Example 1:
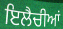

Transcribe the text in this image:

ਇਲੈਚੀਆਂ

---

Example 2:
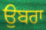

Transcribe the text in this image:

ਉਬਰਾ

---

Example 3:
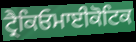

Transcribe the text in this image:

ਟ੍ਰੈਕਿਓਮਾਈਕੋਟਿਕ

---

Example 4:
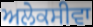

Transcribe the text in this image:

ਅਲੇਕਸੀਵਾ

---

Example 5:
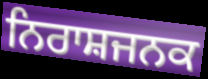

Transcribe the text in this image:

ਨਿਰਾਸ਼ਜਨਕ